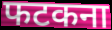
फटकना